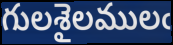
గులశైలములఁ